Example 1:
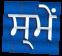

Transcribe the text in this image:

ਸ੍ਮੇਂ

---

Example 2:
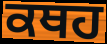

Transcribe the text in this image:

ਕਥਹ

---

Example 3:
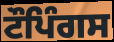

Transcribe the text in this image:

ਟੌਪਿੰਗਸ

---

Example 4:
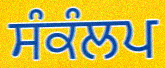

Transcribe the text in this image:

ਸੰਕੰਲਪ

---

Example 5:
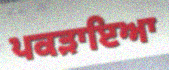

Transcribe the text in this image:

ਪਕੜਾਇਆ